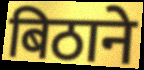
बिठाने